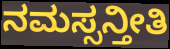
ನಮಸ್ಸನ್ತೀತಿ